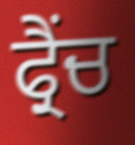
ਫ੍ਰੈਂਚ